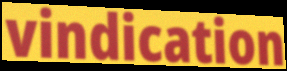
vindication